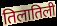
तिलातिली